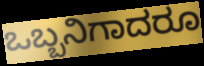
ಒಬ್ಬನಿಗಾದರೂ